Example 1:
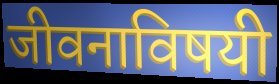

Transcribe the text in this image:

जीवनाविषयी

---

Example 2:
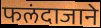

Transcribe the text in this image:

फलंदाजाने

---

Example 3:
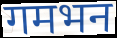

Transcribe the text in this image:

गमभन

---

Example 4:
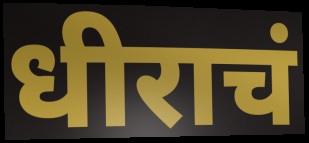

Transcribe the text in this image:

धीराचं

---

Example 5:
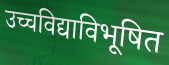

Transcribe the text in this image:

उच्चविद्याविभूषित